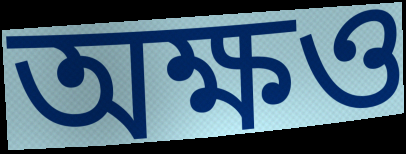
অক্ষও